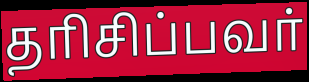
தரிசிப்பவர்